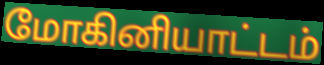
மோகினியாட்டம்